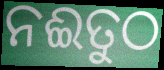
ନଈତୁଠ